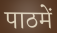
पाठमें